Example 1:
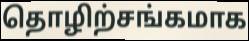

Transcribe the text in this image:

தொழிற்சங்கமாக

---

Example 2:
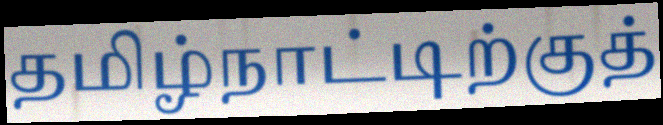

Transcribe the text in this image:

தமிழ்நாட்டிற்குத்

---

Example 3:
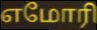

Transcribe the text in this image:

எமோரி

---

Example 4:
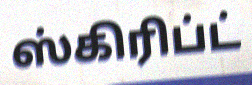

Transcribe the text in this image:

ஸ்கிரிப்ட்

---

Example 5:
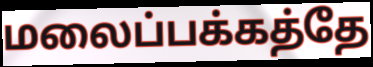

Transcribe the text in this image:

மலைப்பக்கத்தே